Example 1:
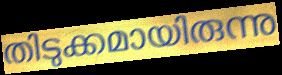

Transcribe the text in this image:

തിടുക്കമായിരുന്നു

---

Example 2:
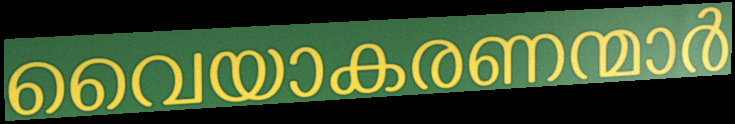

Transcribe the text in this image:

വൈയാകരണന്മാർ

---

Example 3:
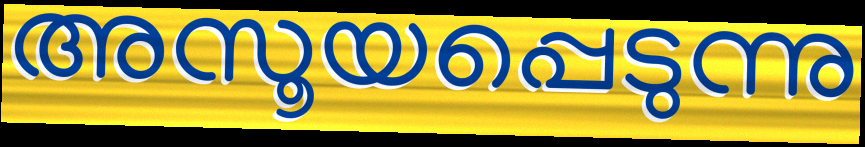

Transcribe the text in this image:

അസൂയപ്പെടുന്നു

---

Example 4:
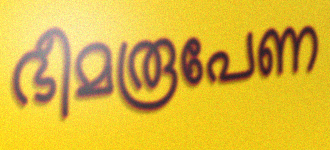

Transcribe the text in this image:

ഭീമരൂപേണ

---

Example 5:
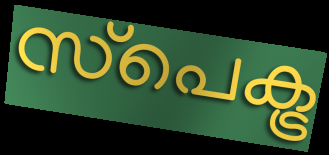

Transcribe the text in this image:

സ്‌പെക്ട്ര